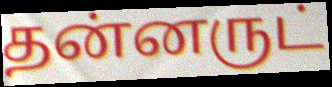
தன்னருட்